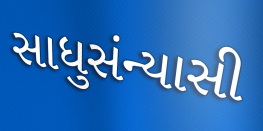
સાધુસંન્યાસી